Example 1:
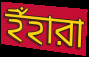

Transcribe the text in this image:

ইঁহারা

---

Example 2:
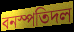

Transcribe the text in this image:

বনস্পতিদল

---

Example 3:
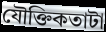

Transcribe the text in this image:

যৌক্তিকতাটা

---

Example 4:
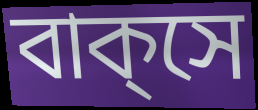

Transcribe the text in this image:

বাক্‌সে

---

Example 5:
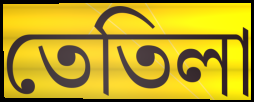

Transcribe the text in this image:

তেতিলা